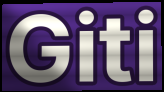
Giti